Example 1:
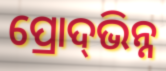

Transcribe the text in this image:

ପ୍ରୋଦ୍‌ଭିନ୍ନ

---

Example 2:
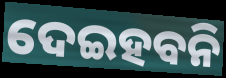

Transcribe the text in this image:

ଦେଇହବନି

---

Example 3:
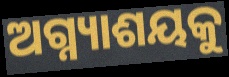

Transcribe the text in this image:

ଅଗ୍ନ୍ୟାଶୟକୁ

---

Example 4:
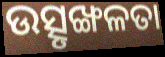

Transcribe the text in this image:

ଉତ୍ସୃଙ୍ଖଳତା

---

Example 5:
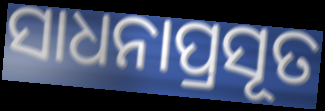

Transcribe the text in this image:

ସାଧନାପ୍ରସୂତ